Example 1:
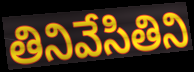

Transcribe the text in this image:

తినివేసితిని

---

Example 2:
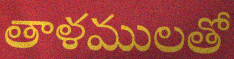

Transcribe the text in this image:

తాళములతో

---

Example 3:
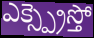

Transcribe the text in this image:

ఎక్స్ప్రెస్తో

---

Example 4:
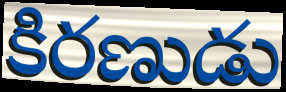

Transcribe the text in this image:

కిరణుడు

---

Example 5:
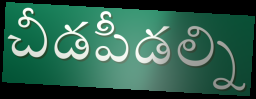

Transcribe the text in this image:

చీడపీడల్ని